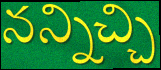
నన్నిచ్చి